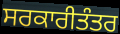
ਸਰਕਾਰੀਤੰਤਰ